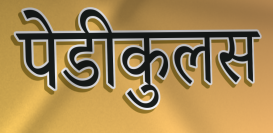
पेडीकुलस